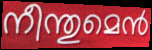
നീന്തുമെൻ